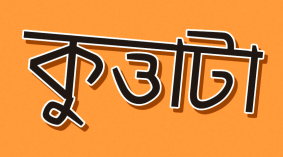
কুত্তাটা